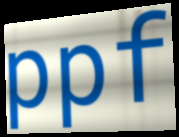
ppf